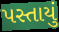
પસ્તાયું